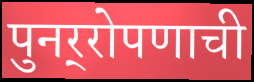
पुनर्रोपणाची